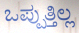
ಒಪ್ಪುತ್ತಿಲ್ಲ